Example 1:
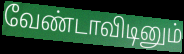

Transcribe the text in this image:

வேண்டாவிடினும்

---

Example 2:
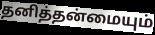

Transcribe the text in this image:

தனித்தன்மையும்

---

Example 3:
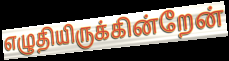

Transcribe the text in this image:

எழுதியிருக்கின்றேன்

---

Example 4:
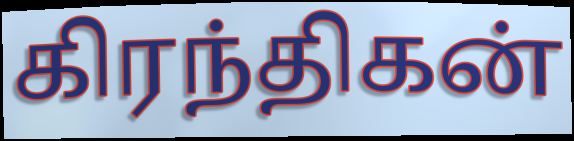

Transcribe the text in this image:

கிரந்திகன்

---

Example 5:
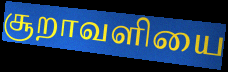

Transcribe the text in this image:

சூறாவளியை